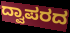
ದ್ವಾಪರದ